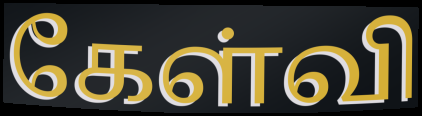
கேள்வி